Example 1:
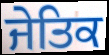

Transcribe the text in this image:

ਜੇਤਿਕ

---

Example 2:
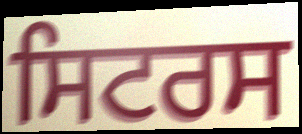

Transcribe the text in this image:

ਸਿਟਰਸ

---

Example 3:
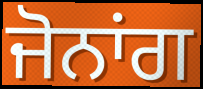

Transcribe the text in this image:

ਜੋਨਾਂਗ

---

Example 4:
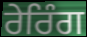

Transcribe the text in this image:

ਰੇਰਿੰਗ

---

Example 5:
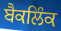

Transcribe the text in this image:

ਬੈਕਲਿੰਕ